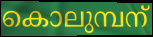
കൊലുമ്പന്